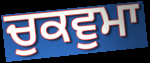
ਚੁਕਵੁਮਾ